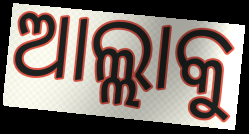
ଆଲ୍ଲାକୁ